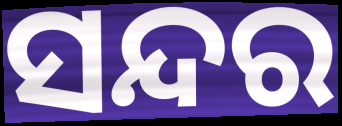
ସନ୍ଦର